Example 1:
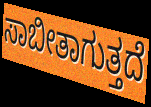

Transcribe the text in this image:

ಸಾಬೀತಾಗುತ್ತದೆ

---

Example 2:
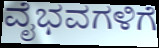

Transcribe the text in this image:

ವೈಭವಗಳಿಗೆ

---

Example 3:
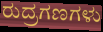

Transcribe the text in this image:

ರುದ್ರಗಣಗಳು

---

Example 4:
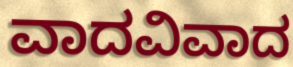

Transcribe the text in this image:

ವಾದವಿವಾದ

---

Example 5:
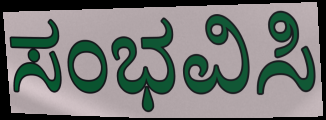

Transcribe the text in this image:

ಸಂಭವಿಸಿ